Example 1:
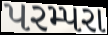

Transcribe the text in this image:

પરમ્પરા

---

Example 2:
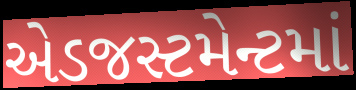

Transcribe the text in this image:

એડજસ્ટમેન્ટમાં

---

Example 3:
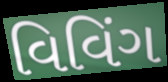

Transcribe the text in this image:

વિવિંગ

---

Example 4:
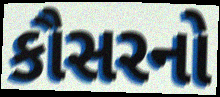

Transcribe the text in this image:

કૌસરનો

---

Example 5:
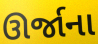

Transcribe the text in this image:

ઊર્જાના